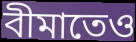
বীমাতেও